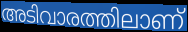
അടിവാരത്തിലാണ്